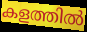
കളത്തിൽ